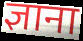
ज्ञाना